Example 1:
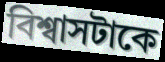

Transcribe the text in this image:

বিশ্বাসটাকে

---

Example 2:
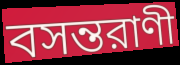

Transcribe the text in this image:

বসন্তরাণী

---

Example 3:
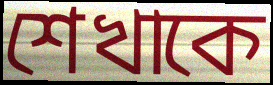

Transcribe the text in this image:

শেখাকে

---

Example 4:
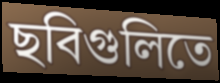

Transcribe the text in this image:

ছবিগুলিতে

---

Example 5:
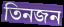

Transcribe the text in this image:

তিনজন